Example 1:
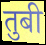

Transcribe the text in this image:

तुबी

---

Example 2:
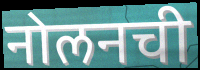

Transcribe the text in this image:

नोलनची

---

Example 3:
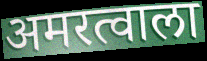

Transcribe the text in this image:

अमरत्वाला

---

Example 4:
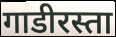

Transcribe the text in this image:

गाडीरस्ता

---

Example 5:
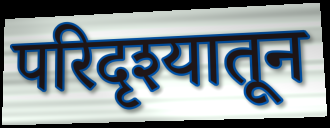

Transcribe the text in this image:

परिदृश्यातून